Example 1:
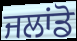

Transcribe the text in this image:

ਜਲਾਂਡੋ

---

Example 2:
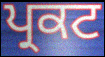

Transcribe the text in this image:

ਪ੍ਰਕਟ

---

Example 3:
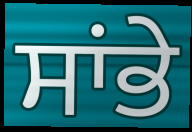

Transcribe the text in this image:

ਸਾਂਭੇ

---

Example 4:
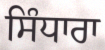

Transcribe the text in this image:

ਸਿੰਧਾਰਾ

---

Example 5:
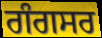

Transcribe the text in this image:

ਗੰਗਸਰ